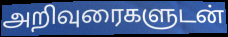
அறிவுரைகளுடன்